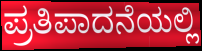
ಪ್ರತಿಪಾದನೆಯಲ್ಲಿ